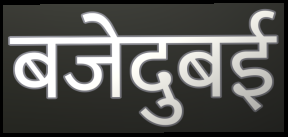
बजेदुबई